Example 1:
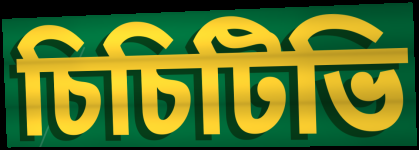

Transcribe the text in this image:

চিচিটিভি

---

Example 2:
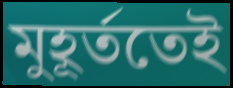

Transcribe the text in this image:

মুহূৰ্ততেই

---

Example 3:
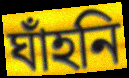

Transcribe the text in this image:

ঘাঁহনি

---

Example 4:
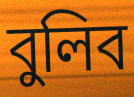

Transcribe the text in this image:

বুলিব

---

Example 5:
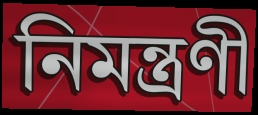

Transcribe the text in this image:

নিমন্ত্ৰণী